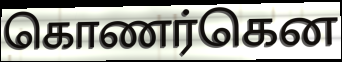
கொணர்கென